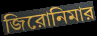
জিরোনিমার